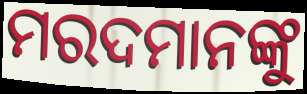
ମରଦମାନଙ୍କୁ